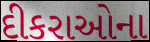
દીકરાઓના